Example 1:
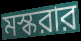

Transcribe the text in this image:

মস্করার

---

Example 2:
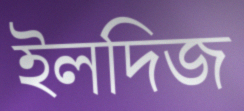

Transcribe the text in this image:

ইলদিজ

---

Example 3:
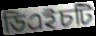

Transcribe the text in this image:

ডিএইচটি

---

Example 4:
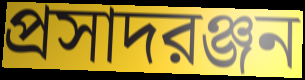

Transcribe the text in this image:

প্রসাদরঞ্জন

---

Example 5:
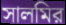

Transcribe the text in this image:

সালমির